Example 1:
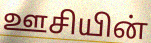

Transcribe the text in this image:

ஊசியின்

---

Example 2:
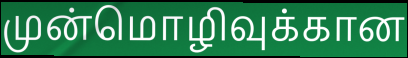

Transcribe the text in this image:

முன்மொழிவுக்கான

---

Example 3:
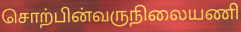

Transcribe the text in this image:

சொற்பின்வருநிலையணி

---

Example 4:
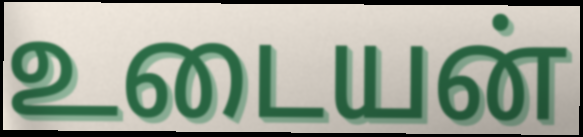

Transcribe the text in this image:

உடையன்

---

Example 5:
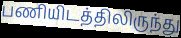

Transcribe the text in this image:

பணியிடத்திலிருந்து